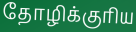
தோழிக்குரிய